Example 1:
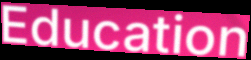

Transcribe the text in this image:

Education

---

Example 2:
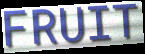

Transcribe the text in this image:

FRUIT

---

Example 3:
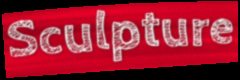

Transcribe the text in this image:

Sculpture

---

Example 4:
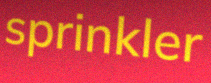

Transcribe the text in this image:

sprinkler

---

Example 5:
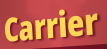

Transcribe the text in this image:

Carrier